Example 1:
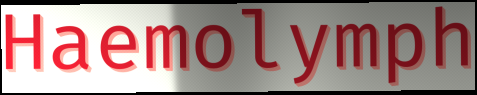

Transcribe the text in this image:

Haemolymph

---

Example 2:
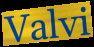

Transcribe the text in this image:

Valvi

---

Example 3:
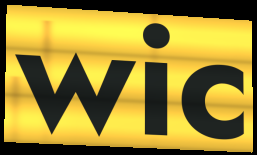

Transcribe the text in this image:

wic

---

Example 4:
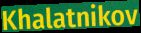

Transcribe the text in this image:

Khalatnikov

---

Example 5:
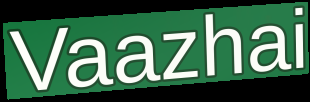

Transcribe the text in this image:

Vaazhai